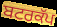
ਬਟਰਕੱਪ